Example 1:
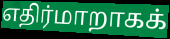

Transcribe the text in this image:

எதிர்மாறாகக்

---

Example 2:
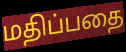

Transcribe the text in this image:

மதிப்பதை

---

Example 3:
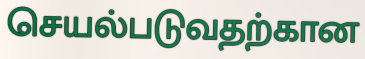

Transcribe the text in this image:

செயல்படுவதற்கான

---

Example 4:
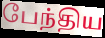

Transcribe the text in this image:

பேந்திய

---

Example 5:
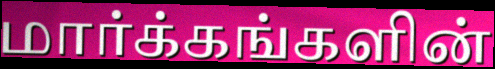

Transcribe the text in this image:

மார்க்கங்களின்